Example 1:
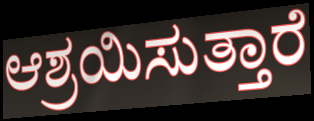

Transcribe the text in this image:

ಆಶ್ರಯಿಸುತ್ತಾರೆ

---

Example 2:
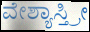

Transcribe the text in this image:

ವೇಶ್ಯಾಸ್ತ್ರೀ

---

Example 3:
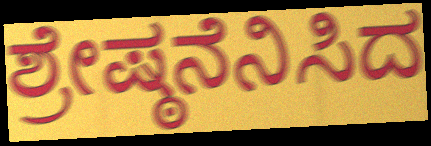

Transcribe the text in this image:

ಶ್ರೇಷ್ಠನೆನಿಸಿದ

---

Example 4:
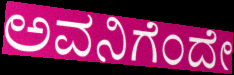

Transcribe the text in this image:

ಅವನಿಗೆಂದೇ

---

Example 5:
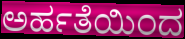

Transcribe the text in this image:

ಅರ್ಹತೆಯಿಂದ